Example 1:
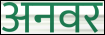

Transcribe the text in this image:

अनवर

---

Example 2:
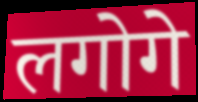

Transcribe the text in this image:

लगोगे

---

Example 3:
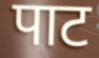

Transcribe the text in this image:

पाट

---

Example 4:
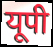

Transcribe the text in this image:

यूपी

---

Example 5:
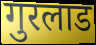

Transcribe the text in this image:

गुरलाड